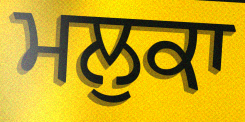
ਮਲੁਕਾ